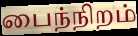
பைந்நிறம்